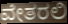
ವೇತರಲಿ